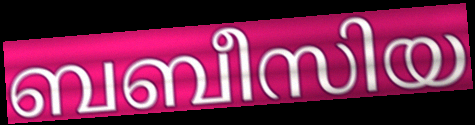
ബബീസിയ